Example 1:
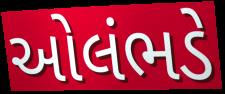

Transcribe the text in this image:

ઓલંભડે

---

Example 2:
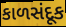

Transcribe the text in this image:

કાળસંદૂક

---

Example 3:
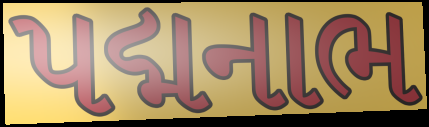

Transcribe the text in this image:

પદ્મનાભ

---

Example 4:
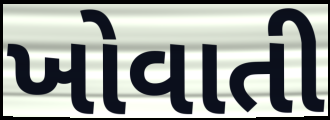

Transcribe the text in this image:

ખોવાતી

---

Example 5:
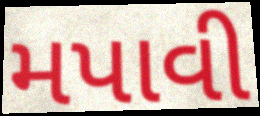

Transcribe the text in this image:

મપાવી